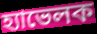
হ্যাভেলক